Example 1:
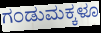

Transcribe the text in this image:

ಗಂಡುಮಕ್ಕಳೂ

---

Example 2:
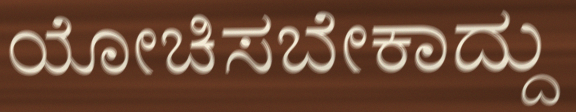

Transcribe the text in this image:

ಯೋಚಿಸಬೇಕಾದ್ದು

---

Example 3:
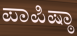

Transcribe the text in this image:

ಪಾಪಿಷ್ಠಾ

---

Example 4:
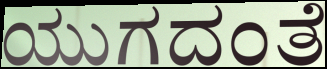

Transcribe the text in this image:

ಯುಗದಂತೆ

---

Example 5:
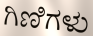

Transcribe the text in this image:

ಗಿಣಿಗಳು